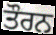
ਤੌਰਨ